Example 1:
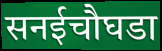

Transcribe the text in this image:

सनईचौघडा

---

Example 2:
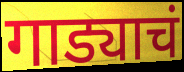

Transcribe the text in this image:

गाड्याचं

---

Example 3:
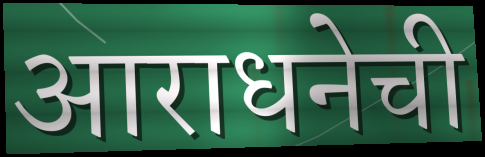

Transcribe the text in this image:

आराधनेची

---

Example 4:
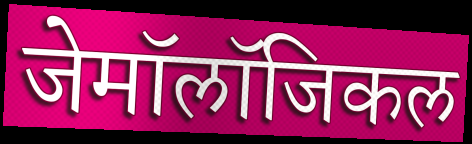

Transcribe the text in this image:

जेमॉलॉजिकल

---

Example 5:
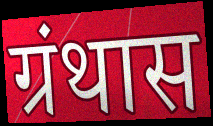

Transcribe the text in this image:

ग्रंथास